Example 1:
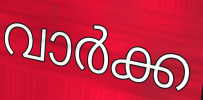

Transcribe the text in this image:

വാർക്ക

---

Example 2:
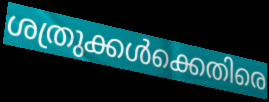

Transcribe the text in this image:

ശത്രുക്കൾക്കെതിരെ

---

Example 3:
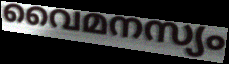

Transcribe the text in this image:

വൈമനസ്യം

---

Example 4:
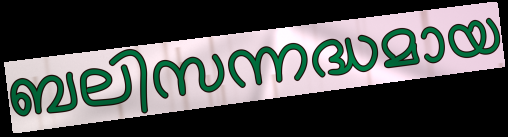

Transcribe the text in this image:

ബലിസന്നദ്ധമായ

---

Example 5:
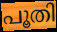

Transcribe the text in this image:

പൂതി